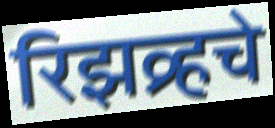
रिझव्र्हचे